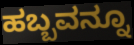
ಹಬ್ಬವನ್ನೂ